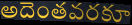
అదెంతవరకూ